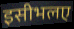
इसीभलए